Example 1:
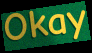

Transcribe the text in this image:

Okay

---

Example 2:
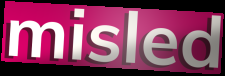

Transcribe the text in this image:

misled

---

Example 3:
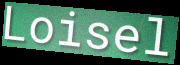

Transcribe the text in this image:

Loisel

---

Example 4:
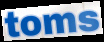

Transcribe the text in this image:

toms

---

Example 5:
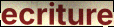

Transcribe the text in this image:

ecriture